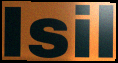
Isil